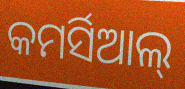
କମର୍ସିଆଲ୍